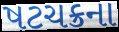
ષટચક્રના